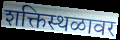
शक्तिस्थळावर